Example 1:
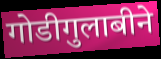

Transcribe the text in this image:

गोडीगुलाबीने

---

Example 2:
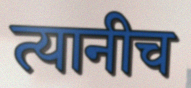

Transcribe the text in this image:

त्यानीच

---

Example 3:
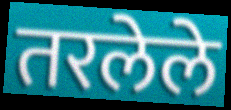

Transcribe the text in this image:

तरलेले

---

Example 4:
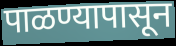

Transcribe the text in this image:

पाळण्यापासून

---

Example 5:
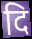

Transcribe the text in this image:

दि